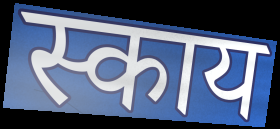
स्काय